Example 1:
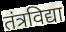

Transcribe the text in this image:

तंत्रविद्या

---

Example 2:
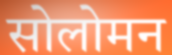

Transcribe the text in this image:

सोलोमन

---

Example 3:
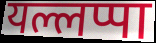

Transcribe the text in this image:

यल्लप्पा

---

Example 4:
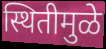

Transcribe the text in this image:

स्थितीमुळे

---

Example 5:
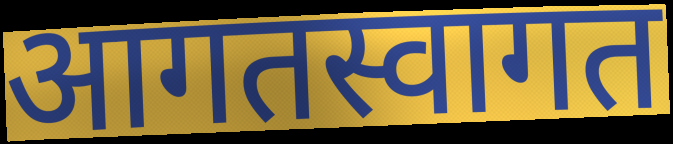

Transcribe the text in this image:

आगतस्वागत